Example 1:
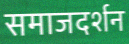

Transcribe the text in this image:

समाजदर्शन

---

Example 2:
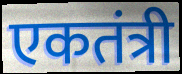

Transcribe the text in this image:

एकतंत्री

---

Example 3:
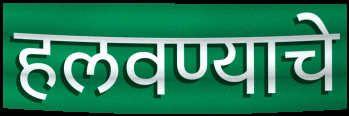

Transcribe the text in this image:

हलवण्याचे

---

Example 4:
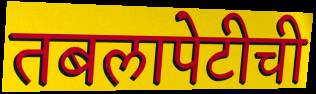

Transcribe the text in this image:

तबलापेटीची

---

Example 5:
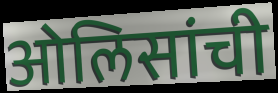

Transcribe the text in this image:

ओलिसांची